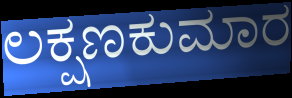
ಲಕ್ಷಣಕುಮಾರ